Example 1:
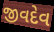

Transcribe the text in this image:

જીવદેવ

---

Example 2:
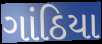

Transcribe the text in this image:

ગાંઠિયા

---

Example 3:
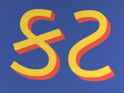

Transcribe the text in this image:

કટ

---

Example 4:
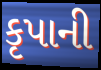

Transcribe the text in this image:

કૃપાની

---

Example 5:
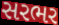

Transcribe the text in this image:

સરભર